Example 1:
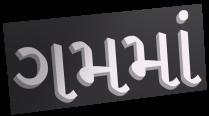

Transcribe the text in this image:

ગમમાં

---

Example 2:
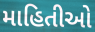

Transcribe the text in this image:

માહિતીઓ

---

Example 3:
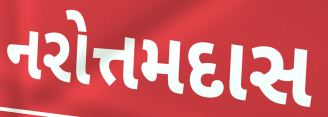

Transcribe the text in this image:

નરોત્તમદાસ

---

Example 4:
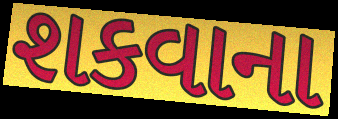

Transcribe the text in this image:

શકવાના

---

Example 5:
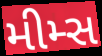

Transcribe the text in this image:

મીમ્સ